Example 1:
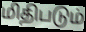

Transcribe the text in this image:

மிதிபடும்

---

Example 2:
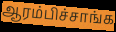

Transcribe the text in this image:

ஆரம்பிச்சாங்க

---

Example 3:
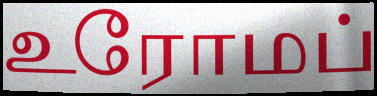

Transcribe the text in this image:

உரோமப்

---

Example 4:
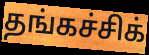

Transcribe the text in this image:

தங்கச்சிக்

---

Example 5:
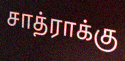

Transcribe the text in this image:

சாத்ராக்கு